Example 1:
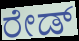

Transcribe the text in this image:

ರೇಡ್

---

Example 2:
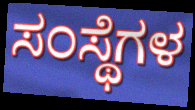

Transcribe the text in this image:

ಸಂಸ್ಥೆಗಳ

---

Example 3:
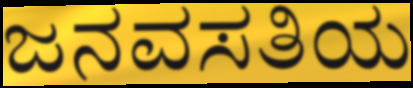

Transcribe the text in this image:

ಜನವಸತಿಯ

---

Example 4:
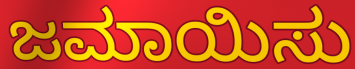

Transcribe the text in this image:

ಜಮಾಯಿಸು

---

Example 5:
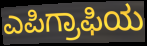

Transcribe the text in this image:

ಎಪಿಗ್ರಾಫಿಯ